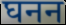
घनन